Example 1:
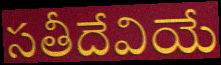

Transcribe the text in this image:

సతీదేవియే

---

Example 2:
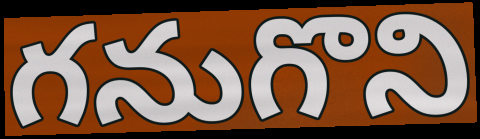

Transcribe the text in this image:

గనుగొని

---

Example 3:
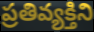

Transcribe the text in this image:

ప్రతివ్యక్తిని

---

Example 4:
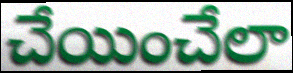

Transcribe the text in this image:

చేయించేలా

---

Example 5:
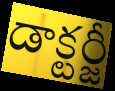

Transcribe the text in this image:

డాక్టర్జీ